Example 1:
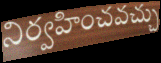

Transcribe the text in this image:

నిర్వహించవచ్చు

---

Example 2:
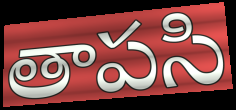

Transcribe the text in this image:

తాపసి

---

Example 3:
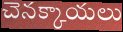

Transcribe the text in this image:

చెనక్కాయలు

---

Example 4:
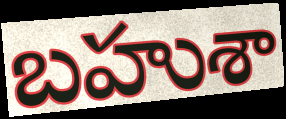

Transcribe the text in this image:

బహుశా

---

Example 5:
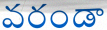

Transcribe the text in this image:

వరండా